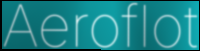
Aeroflot